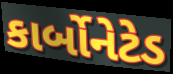
કાર્બોનેટેડ